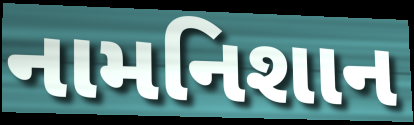
નામનિશાન